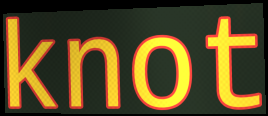
knot